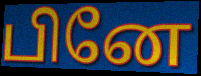
பினே